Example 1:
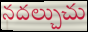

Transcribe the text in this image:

నదల్చుచు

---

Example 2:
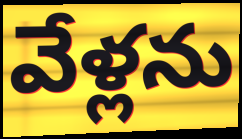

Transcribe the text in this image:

వేళ్లను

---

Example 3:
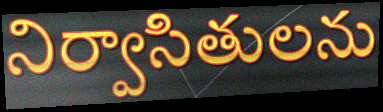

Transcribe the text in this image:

నిర్వాసితులను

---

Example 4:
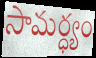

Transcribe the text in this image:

సామర్ధ్యం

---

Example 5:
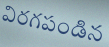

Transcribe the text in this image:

విరగపండిన